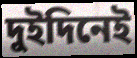
দুইদিনেই